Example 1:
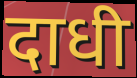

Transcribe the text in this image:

दाधी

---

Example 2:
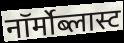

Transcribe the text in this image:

नॉर्मोब्लास्ट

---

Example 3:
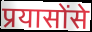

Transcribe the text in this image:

प्रयासोंसे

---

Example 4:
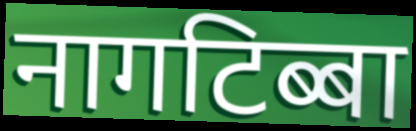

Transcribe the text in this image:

नागटिब्बा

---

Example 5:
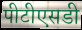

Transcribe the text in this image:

पीटीएसडी